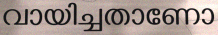
വായിച്ചതാണോ